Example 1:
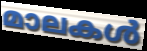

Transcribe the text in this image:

മാലകൾ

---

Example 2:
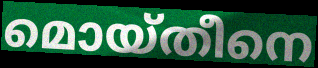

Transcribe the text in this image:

മൊയ്തീനെ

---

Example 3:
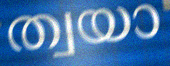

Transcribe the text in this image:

ത്വയാ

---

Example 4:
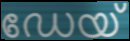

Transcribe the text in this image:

ഡേയ്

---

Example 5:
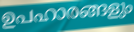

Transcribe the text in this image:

ഉപഹാരങ്ങളും